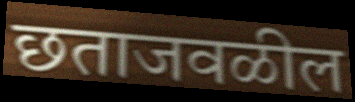
छताजवळील